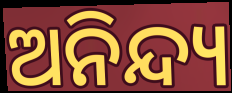
ଅନିନ୍ଦ୍ୟ